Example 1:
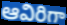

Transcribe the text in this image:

ఆవిరిగా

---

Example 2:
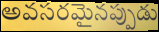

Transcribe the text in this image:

అవసరమైనప్పుడు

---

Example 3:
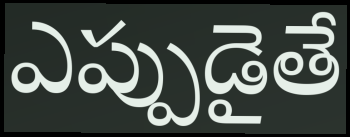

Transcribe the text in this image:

ఎప్పుడైతే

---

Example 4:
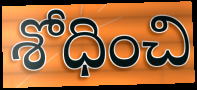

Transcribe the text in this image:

శోధించి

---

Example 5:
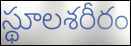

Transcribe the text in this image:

స్థూలశరీరం